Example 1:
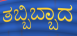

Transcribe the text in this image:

ತಬ್ಬಿಬ್ಬಾದ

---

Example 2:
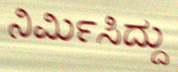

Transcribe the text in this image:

ನಿರ್ಮಿಸಿದ್ದು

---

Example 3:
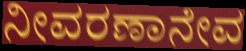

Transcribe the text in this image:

ನೀವರಣಾನೇವ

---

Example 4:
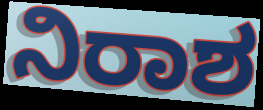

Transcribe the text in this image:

ನಿರಾಶ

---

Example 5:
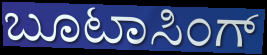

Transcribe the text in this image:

ಬೂಟಾಸಿಂಗ್